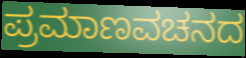
ಪ್ರಮಾಣವಚನದ